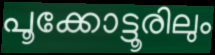
പൂക്കോട്ടൂരിലും